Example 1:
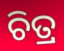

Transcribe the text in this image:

ଚିତ୍ର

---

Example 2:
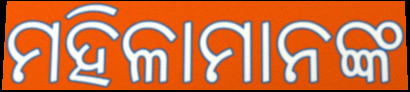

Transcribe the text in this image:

ମହିଳାମାନଙ୍କ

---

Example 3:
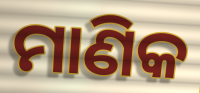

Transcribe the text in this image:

ମାଣିକ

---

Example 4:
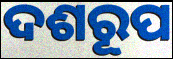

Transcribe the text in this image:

ଦଶରୂପ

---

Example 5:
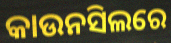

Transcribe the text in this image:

କାଉନସିଲରେ